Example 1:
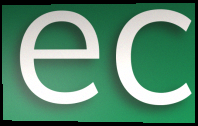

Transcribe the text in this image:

ec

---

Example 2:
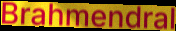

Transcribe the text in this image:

Brahmendral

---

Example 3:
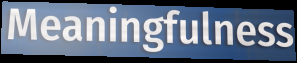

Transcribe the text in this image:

Meaningfulness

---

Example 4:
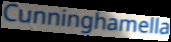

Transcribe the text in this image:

Cunninghamella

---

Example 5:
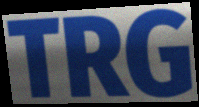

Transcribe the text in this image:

TRG